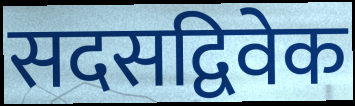
सदसद्विवेक